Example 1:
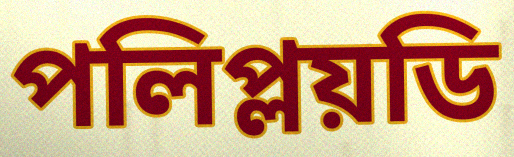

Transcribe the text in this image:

পলিপ্লয়ডি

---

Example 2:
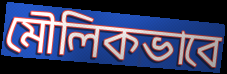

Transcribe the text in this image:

মৌলিকভাবে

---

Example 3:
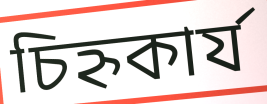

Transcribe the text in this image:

চিহ্নকার্য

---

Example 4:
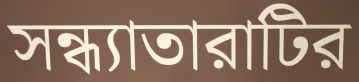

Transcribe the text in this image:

সন্ধ্যাতারাটির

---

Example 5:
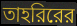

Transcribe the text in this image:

তাহরিরের